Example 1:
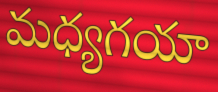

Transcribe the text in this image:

మధ్యగయా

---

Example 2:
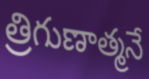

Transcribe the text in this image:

త్రిగుణాత్మనే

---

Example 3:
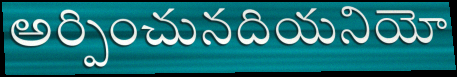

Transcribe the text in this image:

అర్పించునదియనియో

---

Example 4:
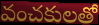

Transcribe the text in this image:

వంచకులతో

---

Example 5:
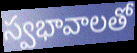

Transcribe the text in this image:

స్వభావాలతో